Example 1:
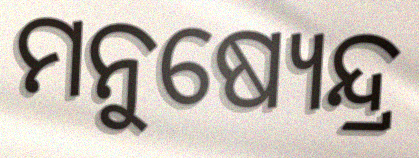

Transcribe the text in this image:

ମନୁଷ୍ୟେନ୍ଦ୍ର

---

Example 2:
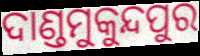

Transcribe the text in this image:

ଦାଣ୍ଡମୁକୁନ୍ଦପୁର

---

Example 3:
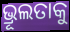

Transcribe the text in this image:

ଭ୍ରୂଲତାକୁ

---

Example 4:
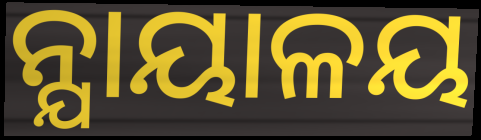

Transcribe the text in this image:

ନ୍ଯାୟାଳୟ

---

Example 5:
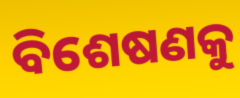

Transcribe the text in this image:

ବିଶେଷଣକୁ